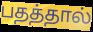
பதத்தால்